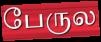
பேருல